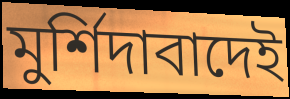
মুর্শিদাবাদেই